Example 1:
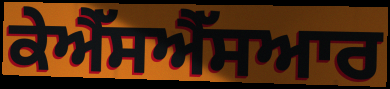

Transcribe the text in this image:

ਕੇਐੱਸਐੱਸਆਰ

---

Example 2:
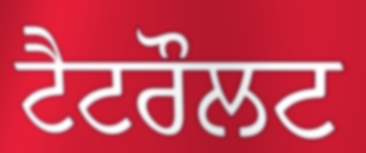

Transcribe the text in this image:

ਟੈਟਰੌਲਟ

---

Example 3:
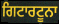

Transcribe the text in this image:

ਗਿਟਾਰਟੂਨਾ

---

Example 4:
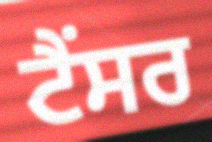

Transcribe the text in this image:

ਟੈਂਸਰ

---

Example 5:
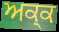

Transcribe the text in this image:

ਅਕ੍ਕ